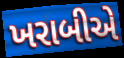
ખરાબીએ